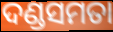
ଦଣ୍ଡସମତା